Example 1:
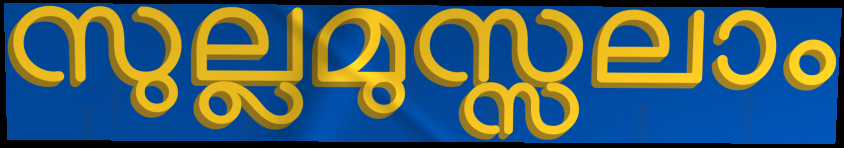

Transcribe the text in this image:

സുല്ലമുസ്സലാം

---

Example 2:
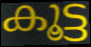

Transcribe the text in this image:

കൂട്ട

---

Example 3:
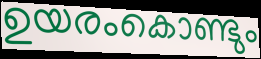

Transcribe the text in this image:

ഉയരംകൊണ്ടും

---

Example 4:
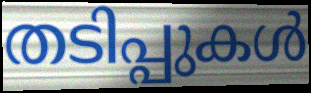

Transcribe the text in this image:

തടിപ്പുകൾ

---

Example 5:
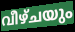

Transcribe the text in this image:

വീഴ്ചയും